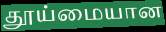
தூய்மையான